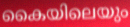
കൈയിലെയും